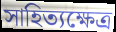
সাহিত্যক্ষেত্র